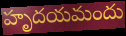
హృదయమందు